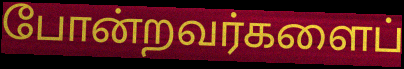
போன்றவர்களைப்